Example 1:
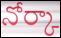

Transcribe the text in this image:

నోర్కా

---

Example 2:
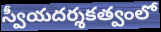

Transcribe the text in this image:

స్వీయదర్శకత్వంలో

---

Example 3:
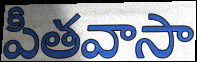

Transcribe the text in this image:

పీతవాసా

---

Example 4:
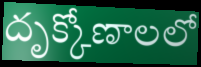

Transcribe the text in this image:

దృక్కోణాలలో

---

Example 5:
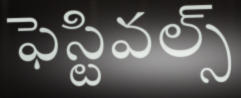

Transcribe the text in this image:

ఫెస్టివల్స్